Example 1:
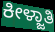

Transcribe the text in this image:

ಕೀಳ್ಜಾತಿ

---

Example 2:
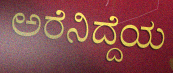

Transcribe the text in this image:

ಅರೆನಿದ್ದೆಯ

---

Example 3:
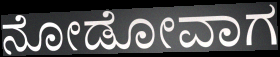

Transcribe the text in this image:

ನೋಡೋವಾಗ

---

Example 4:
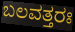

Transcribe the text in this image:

ಬಲವತ್ತರಃ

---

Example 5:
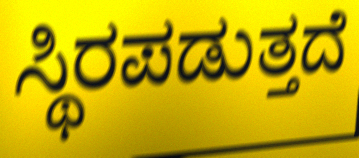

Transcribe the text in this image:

ಸ್ಥಿರಪಡುತ್ತದೆ